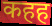
कहह